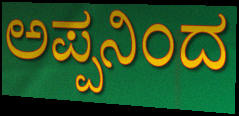
ಅಪ್ಪನಿಂದ